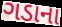
ગડાના